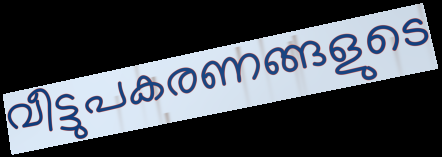
വീട്ടുപകരണങ്ങളുടെ